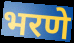
भरणे